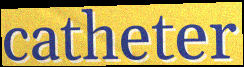
catheter